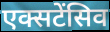
एक्सटेंसिव